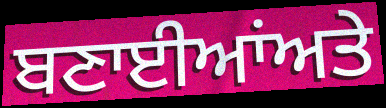
ਬਣਾਈਆਂਅਤੇ